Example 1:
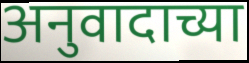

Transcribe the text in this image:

अनुवादाच्या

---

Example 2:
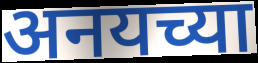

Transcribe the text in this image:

अनयच्या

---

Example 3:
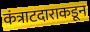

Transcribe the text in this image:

कंत्राटदाराकडून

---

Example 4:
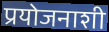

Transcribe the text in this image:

प्रयोजनाशी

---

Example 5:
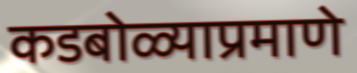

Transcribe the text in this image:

कडबोळ्याप्रमाणे